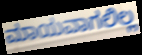
ಮಾಯವಾಗಲಿಲ್ಲ